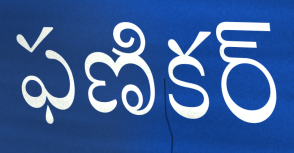
ఫణికర్